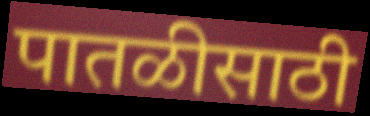
पातळीसाठी